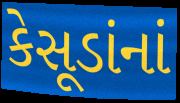
કેસૂડાંનાં